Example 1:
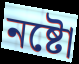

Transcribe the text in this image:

নষ্টো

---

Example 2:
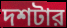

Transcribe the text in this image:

দশটার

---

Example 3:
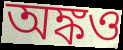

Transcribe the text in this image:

অঙ্কও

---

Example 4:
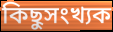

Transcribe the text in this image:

কিছুসংখ্যক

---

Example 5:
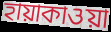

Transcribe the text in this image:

হায়াকাওয়া